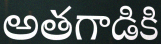
అతగాడికి